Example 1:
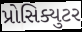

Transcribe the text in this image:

પ્રોસિક્યુટર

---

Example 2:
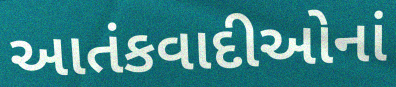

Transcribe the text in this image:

આતંકવાદીઓનાં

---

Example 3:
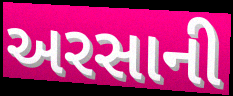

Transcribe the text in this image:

અરસાની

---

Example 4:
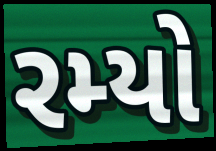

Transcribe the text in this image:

રમ્યો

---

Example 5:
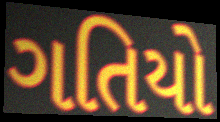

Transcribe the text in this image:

ગતિયો